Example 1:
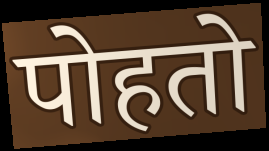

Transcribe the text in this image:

पोहतो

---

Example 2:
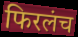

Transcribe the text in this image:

फिरलंच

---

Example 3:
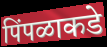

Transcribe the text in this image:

पिंपळाकडे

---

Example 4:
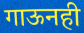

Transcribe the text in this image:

गाऊनही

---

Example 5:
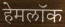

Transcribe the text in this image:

हेमलॉक